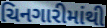
ચિનગારીમાંથી